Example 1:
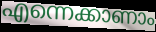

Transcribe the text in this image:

എന്നെക്കാണാം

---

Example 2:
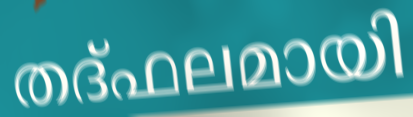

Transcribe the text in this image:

തദ്ഫലമായി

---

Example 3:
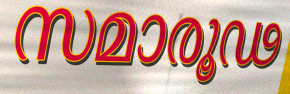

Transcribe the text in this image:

സമാരൂഢ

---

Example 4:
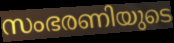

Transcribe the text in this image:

സംഭരണിയുടെ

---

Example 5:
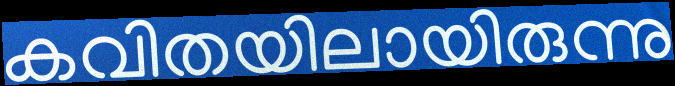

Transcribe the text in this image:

കവിതയിലായിരുന്നു